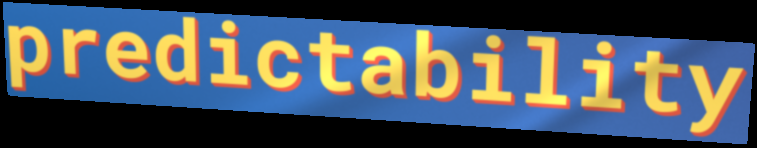
predictability